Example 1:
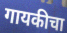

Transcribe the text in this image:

गायकीचा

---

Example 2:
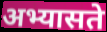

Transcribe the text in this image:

अभ्यासते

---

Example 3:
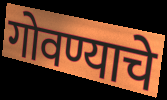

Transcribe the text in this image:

गोवण्याचे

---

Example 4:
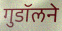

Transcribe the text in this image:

गुडॉलने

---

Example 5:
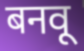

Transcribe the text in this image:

बनवू